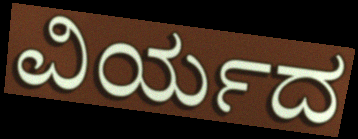
ವಿರ್ಯದ